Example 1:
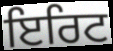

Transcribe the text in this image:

ਇਰਿਟ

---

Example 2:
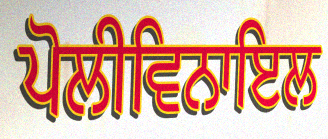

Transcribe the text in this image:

ਪੋਲੀਵਿਨਾਇਲ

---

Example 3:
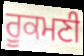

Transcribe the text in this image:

ਰੂਕਮਣੀ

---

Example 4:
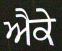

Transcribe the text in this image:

ਐਕੇ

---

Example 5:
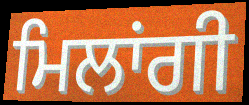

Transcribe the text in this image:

ਮਿਲਾਂਗੀ